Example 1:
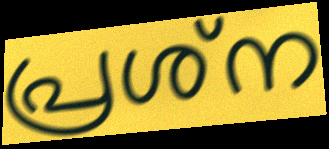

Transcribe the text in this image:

പ്രശ്‌ന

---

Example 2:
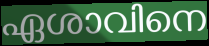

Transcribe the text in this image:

ഏശാവിനെ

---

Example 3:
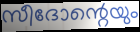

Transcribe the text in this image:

സീദോന്റെയും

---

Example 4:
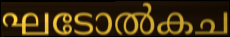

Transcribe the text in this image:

ഘടോൽകച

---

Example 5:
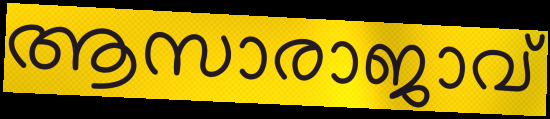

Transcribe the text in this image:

ആസാരാജാവ്